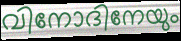
വിനോദിനേയും